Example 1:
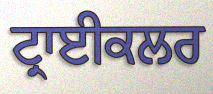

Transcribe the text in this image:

ਟ੍ਰਾਈਕਲਰ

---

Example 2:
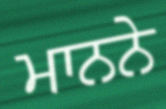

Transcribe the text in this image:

ਮਾਨਨੇ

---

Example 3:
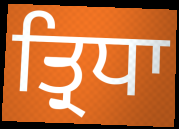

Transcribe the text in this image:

ਤ੍ਰਿਧਾ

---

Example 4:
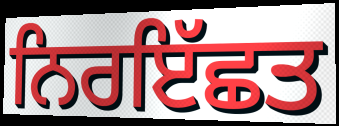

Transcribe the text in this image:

ਨਿਰਇੱਛਤ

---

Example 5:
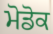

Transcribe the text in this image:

ਮੋਡੋਕ